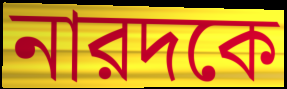
নারদকে